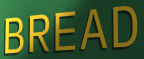
BREAD